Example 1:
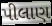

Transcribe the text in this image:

પીલાણ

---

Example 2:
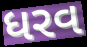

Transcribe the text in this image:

ધરવ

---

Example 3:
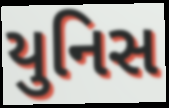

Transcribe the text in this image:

યુનિસ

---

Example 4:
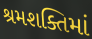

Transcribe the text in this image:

શ્રમશક્તિમાં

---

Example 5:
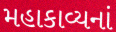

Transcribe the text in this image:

મહાકાવ્યનાં